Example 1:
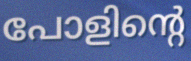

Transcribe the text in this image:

പോളിന്റെ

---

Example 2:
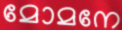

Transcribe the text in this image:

മോമനേ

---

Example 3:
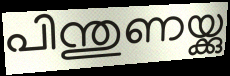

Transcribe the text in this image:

പിന്തുണയ്ക്കു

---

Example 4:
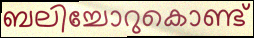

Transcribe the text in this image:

ബലിച്ചോറുകൊണ്ട്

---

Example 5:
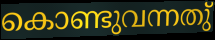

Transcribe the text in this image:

കൊണ്ടുവന്നതു്